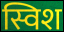
स्विश